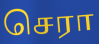
செரா